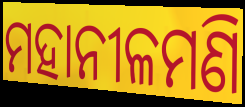
ମହାନୀଳମଣି